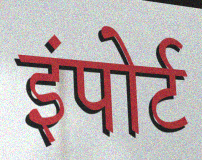
इंपोर्ट